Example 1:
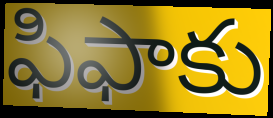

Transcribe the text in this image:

ఫిఫాకు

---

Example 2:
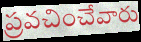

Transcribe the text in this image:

ప్రవచించేవారు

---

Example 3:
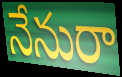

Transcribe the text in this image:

నేనురా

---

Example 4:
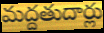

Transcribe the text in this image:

మద్దతుదార్లు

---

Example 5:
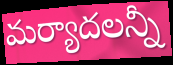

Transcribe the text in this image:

మర్యాదలన్నీ